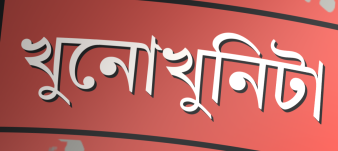
খুনোখুনিটা